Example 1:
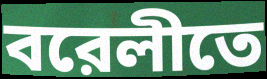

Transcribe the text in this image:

বরেলীতে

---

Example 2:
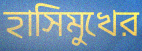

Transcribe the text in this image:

হাসিমুখের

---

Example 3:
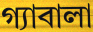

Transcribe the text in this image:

গ্যাবালা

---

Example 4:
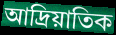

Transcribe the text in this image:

আদ্রিয়াতিক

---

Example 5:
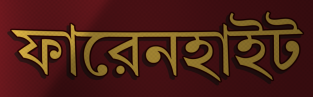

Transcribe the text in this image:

ফারেনহাইট